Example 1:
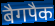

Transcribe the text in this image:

बैगपैक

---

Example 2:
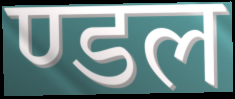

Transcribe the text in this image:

ण्डल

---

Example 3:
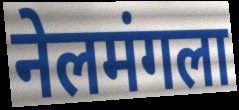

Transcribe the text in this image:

नेलमंगला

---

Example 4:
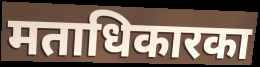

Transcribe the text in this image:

मताधिकारका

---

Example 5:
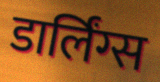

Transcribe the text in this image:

डार्लिंग्स